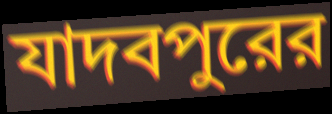
যাদবপুরের